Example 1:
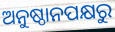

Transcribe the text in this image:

ଅନୁଷ୍ଠାନପକ୍ଷରୁ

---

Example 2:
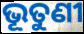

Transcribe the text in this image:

ଭୂତୁଣୀ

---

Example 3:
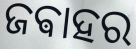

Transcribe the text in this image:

ଜଵାହର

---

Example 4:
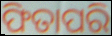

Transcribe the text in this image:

ଫିତାପରି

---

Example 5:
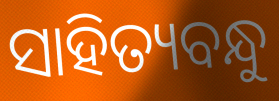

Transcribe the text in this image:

ସାହିତ୍ୟବନ୍ଧୁ